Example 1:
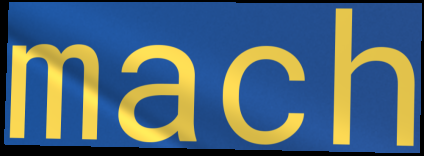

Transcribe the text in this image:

mach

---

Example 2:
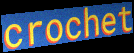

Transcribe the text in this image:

crochet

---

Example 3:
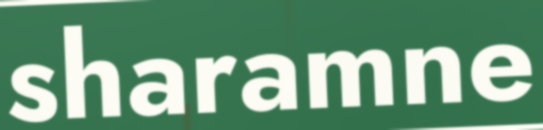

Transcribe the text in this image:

sharamne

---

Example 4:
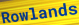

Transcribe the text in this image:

Rowlands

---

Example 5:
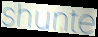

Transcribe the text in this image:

shunte